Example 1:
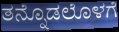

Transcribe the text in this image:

ತನ್ನೊಡಲೊಳಗೆ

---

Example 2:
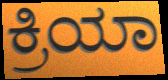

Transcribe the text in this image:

ಕ್ರಿಯಾ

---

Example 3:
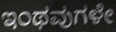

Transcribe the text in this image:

ಇಂಥವುಗಳೇ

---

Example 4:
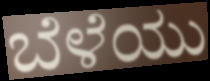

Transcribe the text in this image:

ಬೆಳೆಯು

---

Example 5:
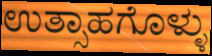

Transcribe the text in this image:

ಉತ್ಸಾಹಗೊಳ್ಳು